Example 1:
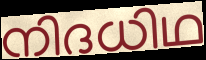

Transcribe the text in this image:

നിദധിഥ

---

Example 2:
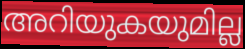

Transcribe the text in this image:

അറിയുകയുമില്ല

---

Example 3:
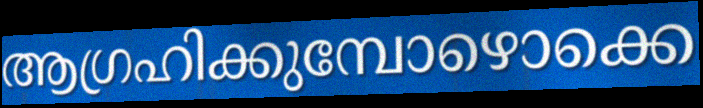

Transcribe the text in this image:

ആഗ്രഹിക്കുമ്പോഴൊക്കെ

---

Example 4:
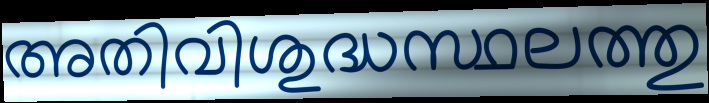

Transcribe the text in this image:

അതിവിശുദ്ധസ്ഥലത്തു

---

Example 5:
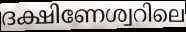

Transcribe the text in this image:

ദക്ഷിണേശ്വറിലെ